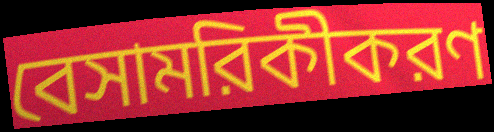
বেসামরিকীকরণ